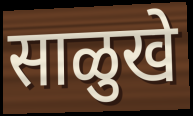
साळुखे